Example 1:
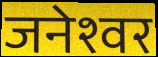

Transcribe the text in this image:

जनेश्वर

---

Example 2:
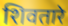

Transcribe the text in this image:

शिवतारे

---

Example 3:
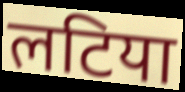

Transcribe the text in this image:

लटिया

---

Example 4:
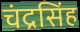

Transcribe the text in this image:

चंद्रसिंह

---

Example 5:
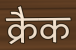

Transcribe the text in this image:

क्रैक